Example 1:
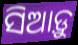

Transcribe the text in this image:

ସିଆଡ଼ୁ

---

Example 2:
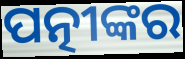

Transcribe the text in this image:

ପତ୍ନୀଙ୍କର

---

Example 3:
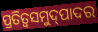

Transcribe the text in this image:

ପ୍ରତିତ୍ଵସମୁଦ୍‌ପାଦର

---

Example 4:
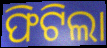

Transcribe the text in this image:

ଫିଟିଲା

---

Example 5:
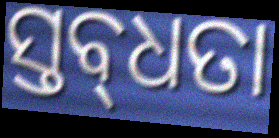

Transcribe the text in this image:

ସ୍ତବ୍‌ଧତା